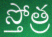
స్తోత్ర